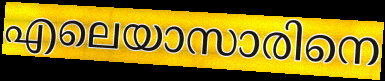
എലെയാസാരിനെ